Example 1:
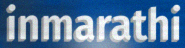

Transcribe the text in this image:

inmarathi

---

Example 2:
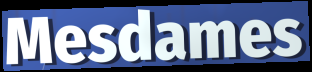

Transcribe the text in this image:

Mesdames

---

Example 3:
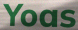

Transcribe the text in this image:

Yoas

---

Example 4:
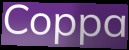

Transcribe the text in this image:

Coppa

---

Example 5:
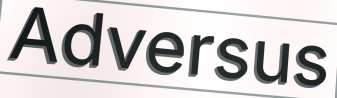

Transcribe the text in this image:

Adversus